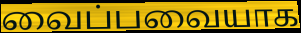
வைப்பவையாக